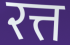
रत्त